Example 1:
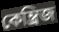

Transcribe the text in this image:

কেম্ব্ৰিজ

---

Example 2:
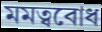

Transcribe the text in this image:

মমত্ববোধ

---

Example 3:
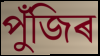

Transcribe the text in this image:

পুঁজিৰ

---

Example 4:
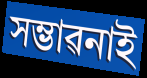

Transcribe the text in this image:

সম্ভাৱনাই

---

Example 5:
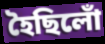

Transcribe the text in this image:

হৈছিলোঁ